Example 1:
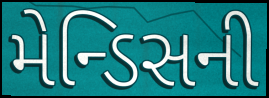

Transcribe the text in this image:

મેન્ડિસની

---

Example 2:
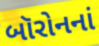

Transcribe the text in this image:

બૉરોનનાં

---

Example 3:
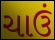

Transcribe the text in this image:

ચાઉં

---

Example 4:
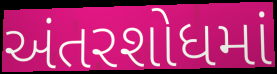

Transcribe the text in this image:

અંતરશોધમાં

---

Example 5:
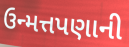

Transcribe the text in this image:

ઉન્મત્તપણાની